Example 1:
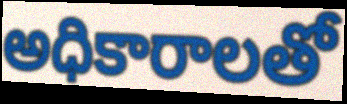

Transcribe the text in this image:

అధికారాలతో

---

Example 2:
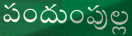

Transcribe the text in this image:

పందుంపుల్ల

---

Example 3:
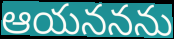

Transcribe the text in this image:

ఆయననను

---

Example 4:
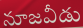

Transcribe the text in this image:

నూజవీడు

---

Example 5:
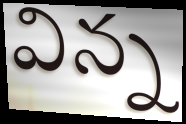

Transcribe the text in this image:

విన్న